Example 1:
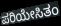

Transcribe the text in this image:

ಪರಿಯೇಸಿತಂ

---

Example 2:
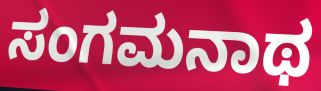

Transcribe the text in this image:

ಸಂಗಮನಾಥ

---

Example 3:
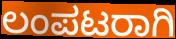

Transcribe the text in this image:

ಲಂಪಟರಾಗಿ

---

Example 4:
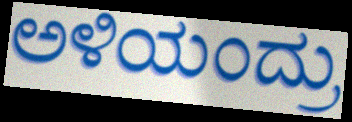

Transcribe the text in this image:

ಅಳಿಯಂದ್ರು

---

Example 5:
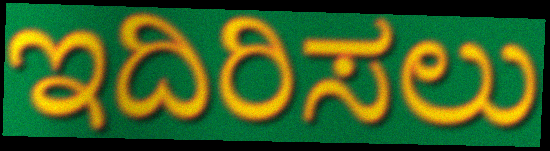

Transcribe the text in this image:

ಇದಿರಿಸಲು